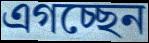
এগচ্ছেন